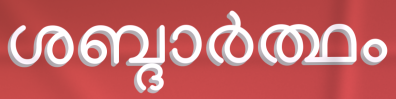
ശബ്ദാർത്ഥം